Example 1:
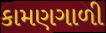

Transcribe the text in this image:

કામણગાળી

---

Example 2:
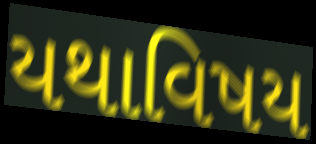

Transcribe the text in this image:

યથાવિષય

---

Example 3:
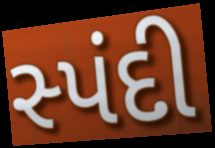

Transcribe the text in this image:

સ્પંદી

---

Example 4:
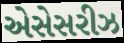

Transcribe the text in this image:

એસેસરીઝ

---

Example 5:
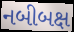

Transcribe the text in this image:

નબીબક્ષ